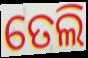
ତେଲି